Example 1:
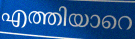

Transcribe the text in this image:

എത്തിയാറെ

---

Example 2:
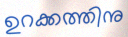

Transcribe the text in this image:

ഉറക്കത്തിനു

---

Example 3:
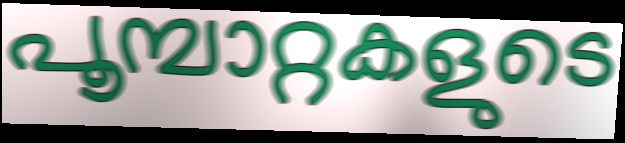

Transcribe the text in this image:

പൂമ്പാറ്റകളുടെ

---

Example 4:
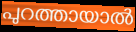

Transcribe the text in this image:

പുറത്തായാൽ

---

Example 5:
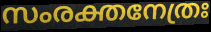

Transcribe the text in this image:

സംരക്തനേത്രഃ